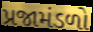
પ્રજામંડળો